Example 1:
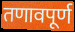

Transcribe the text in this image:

तणावपूर्ण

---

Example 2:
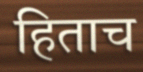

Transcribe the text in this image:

हिताच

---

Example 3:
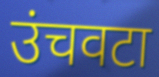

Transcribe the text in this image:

उंचवटा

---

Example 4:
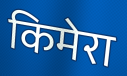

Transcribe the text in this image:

किमेरा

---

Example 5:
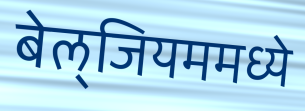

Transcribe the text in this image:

बेल्जियममध्ये